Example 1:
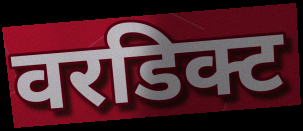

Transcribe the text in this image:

वरडिक्ट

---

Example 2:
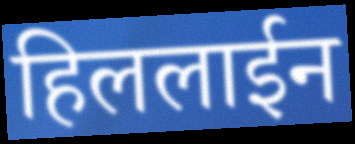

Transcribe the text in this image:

हिललाईन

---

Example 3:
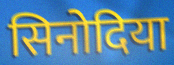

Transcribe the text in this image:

सिनोदिया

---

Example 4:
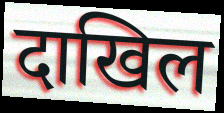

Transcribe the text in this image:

दाखिल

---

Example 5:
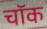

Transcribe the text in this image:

चॉक